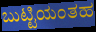
ಬುಟ್ಟಿಯಂತಹ